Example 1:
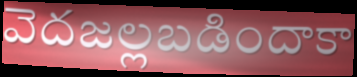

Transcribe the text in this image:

వెదజల్లబడిందాకా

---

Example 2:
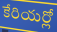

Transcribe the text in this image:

కేరియర్లో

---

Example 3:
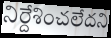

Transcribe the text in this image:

నిర్దేశించలేదని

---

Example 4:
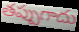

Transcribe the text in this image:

తప్పుగాదు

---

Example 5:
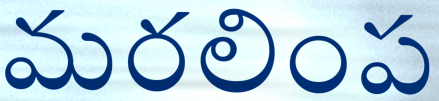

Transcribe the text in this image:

మరలింప